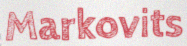
Markovits